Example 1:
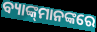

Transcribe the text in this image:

ବ୍ୟାଙ୍କ୍‌ମାନଙ୍କରେ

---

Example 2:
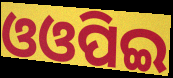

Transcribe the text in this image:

ଓଓପିଇ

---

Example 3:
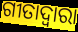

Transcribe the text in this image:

ଗୀତାଦ୍ଵାରା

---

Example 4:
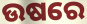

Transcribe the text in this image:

ଉଷରେ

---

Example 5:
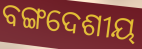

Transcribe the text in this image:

ବଙ୍ଗଦେଶୀୟ